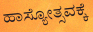
ಹಾಸ್ಯೋತ್ಸವಕ್ಕೆ